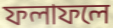
ফলাফলে